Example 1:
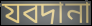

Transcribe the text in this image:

যবদানা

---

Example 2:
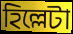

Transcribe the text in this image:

হিল্লেটা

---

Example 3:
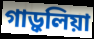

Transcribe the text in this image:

গাড়ুলিয়া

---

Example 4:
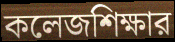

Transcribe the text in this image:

কলেজশিক্ষার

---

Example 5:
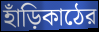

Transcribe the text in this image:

হাঁড়িকাঠের